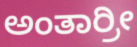
ಅಂತಾರ್ರೀ